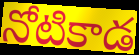
నోటికాడ